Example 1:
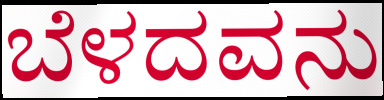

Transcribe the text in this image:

ಬೆಳದವನು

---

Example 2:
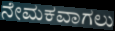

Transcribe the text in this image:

ನೇಮಕವಾಗಲು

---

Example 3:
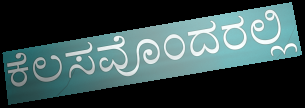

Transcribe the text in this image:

ಕೆಲಸವೊಂದರಲ್ಲಿ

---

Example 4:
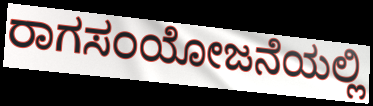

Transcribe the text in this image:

ರಾಗಸಂಯೋಜನೆಯಲ್ಲಿ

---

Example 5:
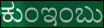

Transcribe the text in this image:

ಕುಂಇಂಬು